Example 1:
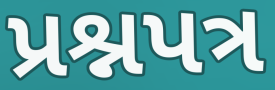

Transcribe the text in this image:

પ્રશ્નપત્ર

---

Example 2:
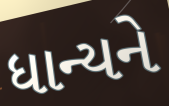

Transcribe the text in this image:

ધાન્યને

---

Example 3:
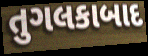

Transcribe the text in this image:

તુગલકાબાદ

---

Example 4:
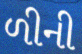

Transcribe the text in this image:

ળીની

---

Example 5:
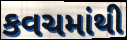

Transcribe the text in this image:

કવચમાંથી